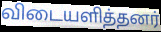
விடையளித்தனர்